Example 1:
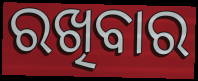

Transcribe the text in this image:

ରଖିବାର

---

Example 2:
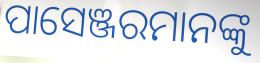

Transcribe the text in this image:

ପାସେଞ୍ଜରମାନଙ୍କୁ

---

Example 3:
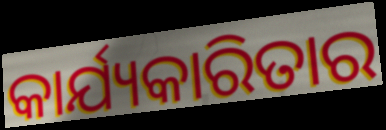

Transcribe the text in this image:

କାର୍ଯ୍ୟକାରିତାର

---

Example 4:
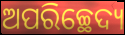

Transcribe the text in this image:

ଅପରିଚ୍ଛେଦ୍ୟ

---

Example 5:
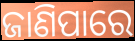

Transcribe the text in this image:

ଜାଣିପାରେ